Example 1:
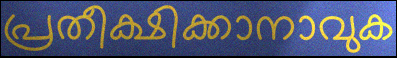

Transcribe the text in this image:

പ്രതീക്ഷിക്കാനാവുക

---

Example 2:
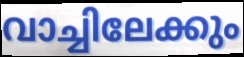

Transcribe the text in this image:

വാച്ചിലേക്കും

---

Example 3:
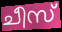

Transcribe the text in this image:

ചീസ്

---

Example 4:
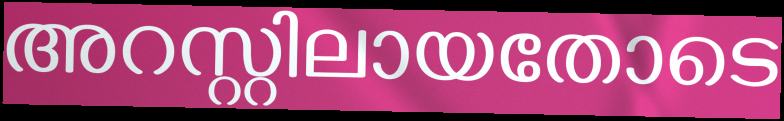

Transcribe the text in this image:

അറസ്റ്റിലായതോടെ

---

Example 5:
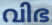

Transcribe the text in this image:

വിഭ